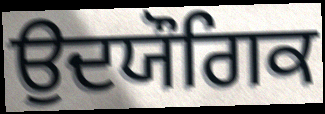
ਉਦਯੌਗਿਕ